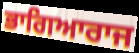
ਭਾਗਿਆਰਾਜ